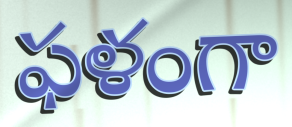
ఫళంగా